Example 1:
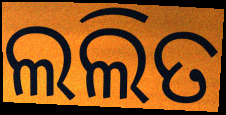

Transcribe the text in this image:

ଲଲିତ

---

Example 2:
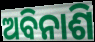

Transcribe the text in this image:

ଅବିନାଶି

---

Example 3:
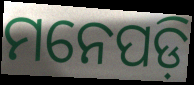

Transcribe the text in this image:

ମନେପଡ଼ି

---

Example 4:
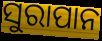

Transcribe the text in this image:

ସୁରାପାନ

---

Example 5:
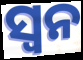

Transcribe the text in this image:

ସ୍ୱନ